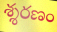
శ్శరణం